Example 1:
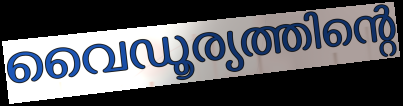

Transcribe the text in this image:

വൈഡൂര്യത്തിന്റെ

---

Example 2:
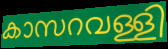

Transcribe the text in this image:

കാസറവള്ളി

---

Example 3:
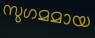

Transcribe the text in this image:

സുഗമമായ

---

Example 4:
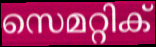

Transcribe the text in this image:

സെമറ്റിക്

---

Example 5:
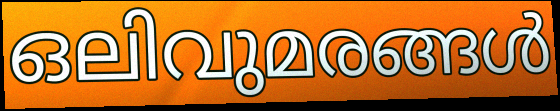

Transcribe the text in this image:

ഒലിവുമരങ്ങൾ